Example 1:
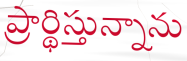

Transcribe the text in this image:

ప్రార్థిస్తున్నాను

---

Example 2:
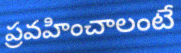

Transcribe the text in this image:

ప్రవహించాలంటే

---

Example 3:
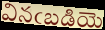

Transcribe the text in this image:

వినఁబడియె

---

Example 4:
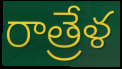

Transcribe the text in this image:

రాత్రేళ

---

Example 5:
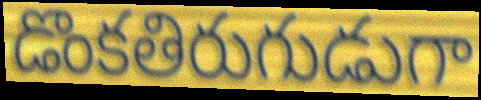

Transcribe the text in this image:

డొంకతిరుగుడుగా